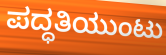
ಪದ್ಧತಿಯುಂಟು